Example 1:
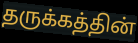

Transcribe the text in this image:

தருக்கத்தின்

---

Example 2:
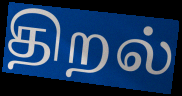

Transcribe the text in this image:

திறல்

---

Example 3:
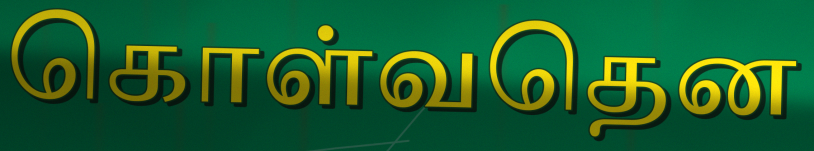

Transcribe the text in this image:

கொள்வதென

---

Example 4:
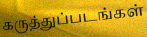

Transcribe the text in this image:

கருத்துப்படங்கள்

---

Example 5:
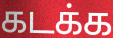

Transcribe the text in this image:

கடக்க